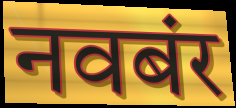
नवबंर